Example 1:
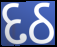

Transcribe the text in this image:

દઠ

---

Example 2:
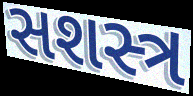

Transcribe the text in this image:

સશસ્ત્ર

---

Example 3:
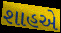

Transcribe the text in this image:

શાહએ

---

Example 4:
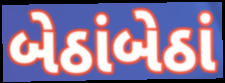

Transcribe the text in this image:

બેઠાંબેઠાં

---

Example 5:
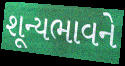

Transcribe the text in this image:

શૂન્યભાવને